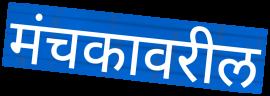
मंचकावरील